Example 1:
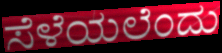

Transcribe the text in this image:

ಸೆಳೆಯಲೆಂದು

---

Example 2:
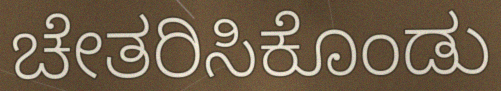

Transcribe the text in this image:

ಚೇತರಿಸಿಕೊಂಡು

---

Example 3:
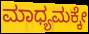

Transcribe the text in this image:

ಮಾಧ್ಯಮಕ್ಕೇ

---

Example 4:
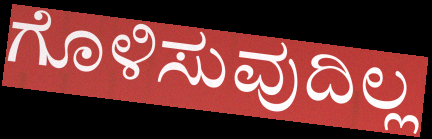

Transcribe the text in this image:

ಗೊಳಿಸುವುದಿಲ್ಲ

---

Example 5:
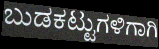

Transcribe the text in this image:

ಬುಡಕಟ್ಟುಗಳಿಗಾಗಿ